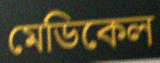
মেডিকেল